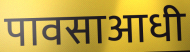
पावसाआधी